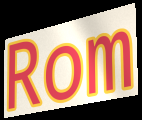
Rom